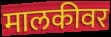
मालकीवर